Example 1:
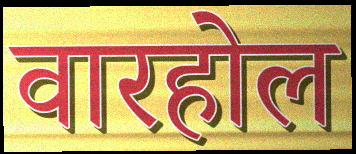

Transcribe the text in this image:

वारहोल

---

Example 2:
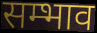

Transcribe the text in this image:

सम्भाव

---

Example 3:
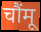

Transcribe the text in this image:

चौंमू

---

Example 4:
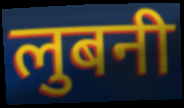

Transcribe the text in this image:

लुबनी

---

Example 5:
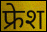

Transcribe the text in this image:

फ्रेश